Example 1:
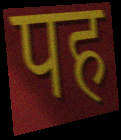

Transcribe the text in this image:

पह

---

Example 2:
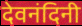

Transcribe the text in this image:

देवनंदिनी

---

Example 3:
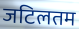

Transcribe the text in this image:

जटिलतम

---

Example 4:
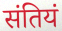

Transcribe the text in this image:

संतियं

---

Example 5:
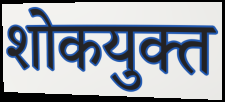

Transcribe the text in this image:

शोकयुक्त